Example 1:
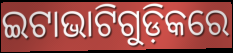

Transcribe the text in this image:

ଇଟାଭାଟିଗୁଡ଼ିକରେ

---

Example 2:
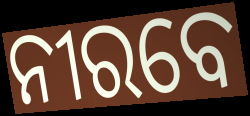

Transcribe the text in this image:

ନୀରବେ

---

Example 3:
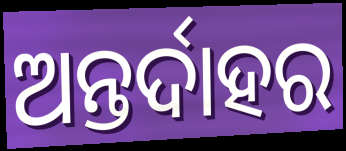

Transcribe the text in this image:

ଅନ୍ତର୍ଦାହର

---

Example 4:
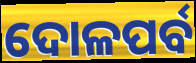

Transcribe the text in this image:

ଦୋଳପର୍ବ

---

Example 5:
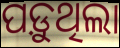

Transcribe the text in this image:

ପଡ଼ୁଥିଲା